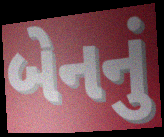
બેનનું